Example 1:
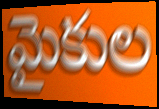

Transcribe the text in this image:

మైకుల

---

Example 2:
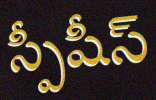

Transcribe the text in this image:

స్పీషీస్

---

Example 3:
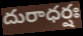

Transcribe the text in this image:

దురాధర్షః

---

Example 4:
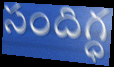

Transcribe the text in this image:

సందిగ్ధ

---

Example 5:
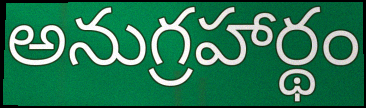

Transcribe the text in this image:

అనుగ్రహార్థం